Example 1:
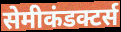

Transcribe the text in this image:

सेमीकंडक्टर्स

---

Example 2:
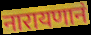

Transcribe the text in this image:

नारायणानं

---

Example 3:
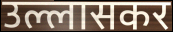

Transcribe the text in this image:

उल्लासकर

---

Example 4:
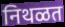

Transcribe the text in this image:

निथळत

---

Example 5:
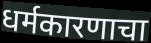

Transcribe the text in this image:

धर्मकारणाचा